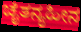
ಚೈತನ್ಯಹೀನ